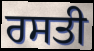
ਰਸਤੀ